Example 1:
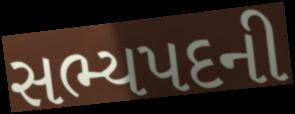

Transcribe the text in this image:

સભ્યપદની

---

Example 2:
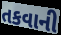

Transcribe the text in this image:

તકવાની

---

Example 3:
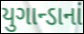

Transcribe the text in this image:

યુગાન્ડાનાં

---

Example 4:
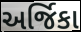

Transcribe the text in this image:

અર્જિકા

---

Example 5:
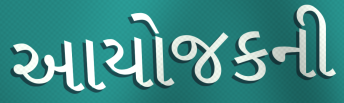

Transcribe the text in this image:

આયોજકની